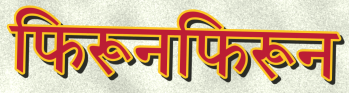
फिरूनफिरून